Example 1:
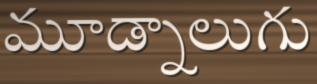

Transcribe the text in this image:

మూడ్నాలుగు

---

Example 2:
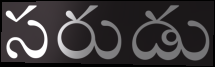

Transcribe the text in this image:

సరుడు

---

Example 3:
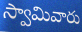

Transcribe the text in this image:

స్వామివారు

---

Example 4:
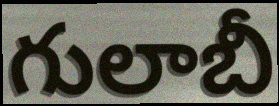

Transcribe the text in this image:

గులాబీ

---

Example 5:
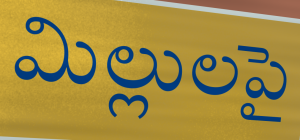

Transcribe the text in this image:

మిల్లులపై